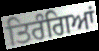
ਤਿਰੰਗਿਆਂ